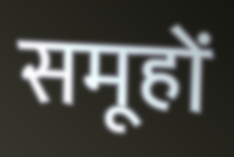
समूहों